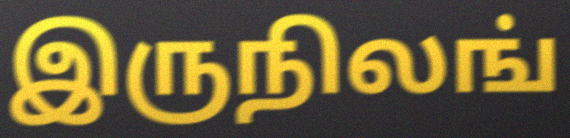
இருநிலங்